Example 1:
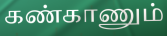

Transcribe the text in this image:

கண்காணும்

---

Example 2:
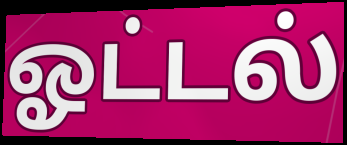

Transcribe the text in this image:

ஓட்டல்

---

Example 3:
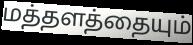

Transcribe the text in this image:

மத்தளத்தையும்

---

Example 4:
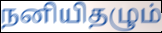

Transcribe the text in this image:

நனியிதழும்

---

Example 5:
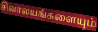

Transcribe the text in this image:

சிவாலயங்களையும்